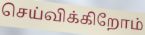
செய்விக்கிறோம்